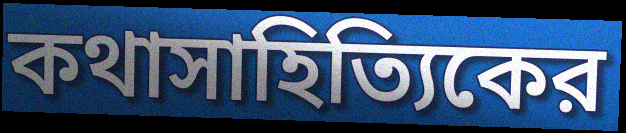
কথাসাহিত্যিকের